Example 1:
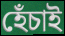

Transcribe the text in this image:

হেঁচাই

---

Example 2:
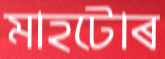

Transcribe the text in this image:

মাহটোৰ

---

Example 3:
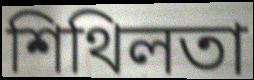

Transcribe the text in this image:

শিথিলতা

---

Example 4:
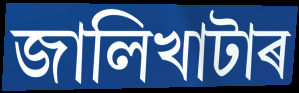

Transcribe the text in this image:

জালিখাটাৰ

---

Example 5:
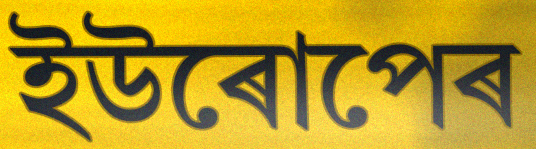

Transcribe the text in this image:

ইউৰোপেৰ